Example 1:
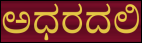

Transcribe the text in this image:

ಅಧರದಲಿ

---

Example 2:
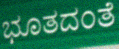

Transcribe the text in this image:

ಭೂತದಂತೆ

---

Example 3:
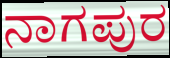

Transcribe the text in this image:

ನಾಗಪುರ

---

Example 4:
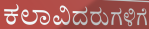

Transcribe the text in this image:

ಕಲಾವಿದರುಗಳಿಗೆ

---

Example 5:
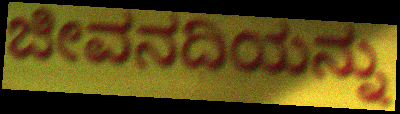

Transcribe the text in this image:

ಜೀವನದಿಯನ್ನು